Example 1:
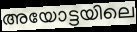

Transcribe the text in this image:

അയോട്ടയിലെ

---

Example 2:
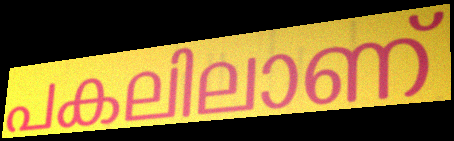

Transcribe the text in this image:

പകലിലാണ്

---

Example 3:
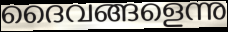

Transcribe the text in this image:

ദൈവങ്ങളെന്നു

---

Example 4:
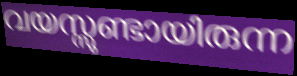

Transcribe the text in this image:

വയസ്സുണ്ടായിരുന്ന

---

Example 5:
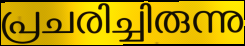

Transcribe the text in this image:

പ്രചരിച്ചിരുന്നു